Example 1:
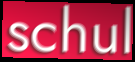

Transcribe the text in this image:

schul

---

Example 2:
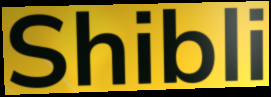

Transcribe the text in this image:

Shibli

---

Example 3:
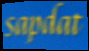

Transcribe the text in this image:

sapdat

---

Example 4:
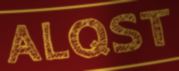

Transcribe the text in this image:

ALQST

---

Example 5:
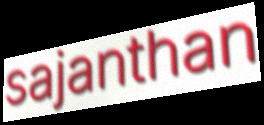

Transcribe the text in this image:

sajanthan